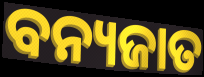
ବନ୍ୟଜାତ